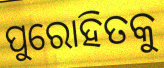
ପୁରୋହିତକୁ